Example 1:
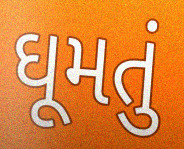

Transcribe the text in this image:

ઘૂમતું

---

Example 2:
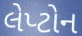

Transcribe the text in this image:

લેપ્ટોન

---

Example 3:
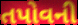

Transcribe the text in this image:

તપોવની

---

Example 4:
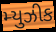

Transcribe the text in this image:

મ્યુઝીક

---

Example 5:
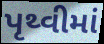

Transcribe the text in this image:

પૃથ્વીમાં